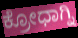
ಕ್ರೋಧಾಗ್ನಿ